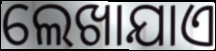
ଲେଖାଯାଏ